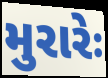
મુરારેઃ